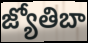
జ్యోతిబా